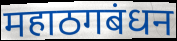
महाठगबंधन